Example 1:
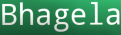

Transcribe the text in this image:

Bhagela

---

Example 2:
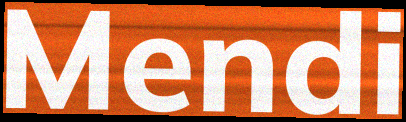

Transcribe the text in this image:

Mendi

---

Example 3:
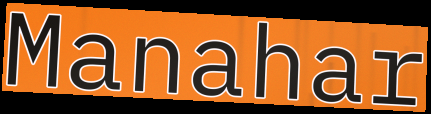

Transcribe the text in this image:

Manahar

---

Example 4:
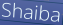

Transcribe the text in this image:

Shaiba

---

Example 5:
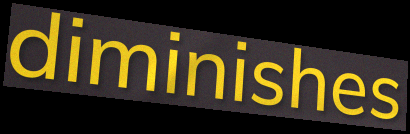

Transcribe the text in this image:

diminishes